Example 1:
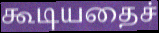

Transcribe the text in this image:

கூடியதைச்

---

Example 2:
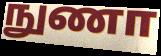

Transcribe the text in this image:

நுணா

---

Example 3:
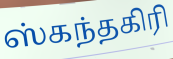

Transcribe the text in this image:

ஸ்கந்தகிரி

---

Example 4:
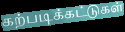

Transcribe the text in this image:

கற்படிக்கட்டுகள்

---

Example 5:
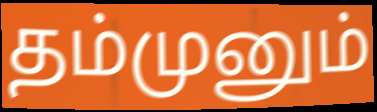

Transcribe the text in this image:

தம்முனும்